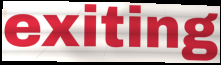
exiting